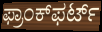
ಫ್ರಾಂಕ್‌ಫರ್ಟ್